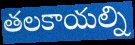
తలకాయల్ని